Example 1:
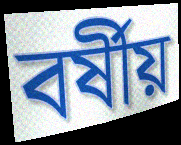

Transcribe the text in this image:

বৰ্ষীয়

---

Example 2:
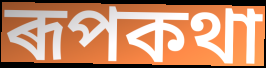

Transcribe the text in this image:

ৰূপকথা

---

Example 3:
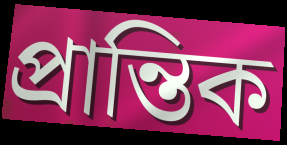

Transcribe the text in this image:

প্ৰান্তিক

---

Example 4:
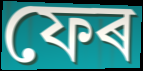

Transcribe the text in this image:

ফেৰ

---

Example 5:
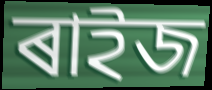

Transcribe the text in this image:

ৰাইজ